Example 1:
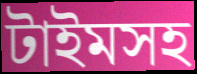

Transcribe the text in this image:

টাইমসহ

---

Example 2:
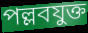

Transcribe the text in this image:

পল্লবযুক্ত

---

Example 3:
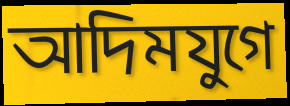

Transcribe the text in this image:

আদিমযুগে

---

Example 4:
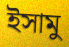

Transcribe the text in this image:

ইসামু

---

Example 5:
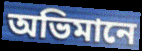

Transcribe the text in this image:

অভিমানে